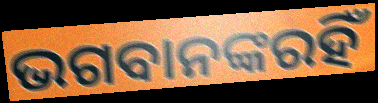
ଭଗବାନଙ୍କରହିଁ